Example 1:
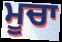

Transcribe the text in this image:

ਮੂਚਾ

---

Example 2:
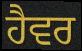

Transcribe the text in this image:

ਹੈਵਰ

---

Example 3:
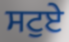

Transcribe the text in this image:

ਸਟੁਏ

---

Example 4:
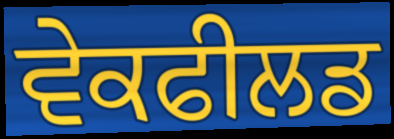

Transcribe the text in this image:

ਵੇਕਫੀਲਡ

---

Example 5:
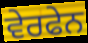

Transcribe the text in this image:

ਵੇਰਫੇਨ